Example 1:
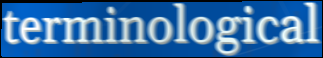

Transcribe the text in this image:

terminological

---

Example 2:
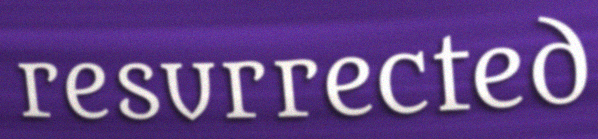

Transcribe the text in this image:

resurrected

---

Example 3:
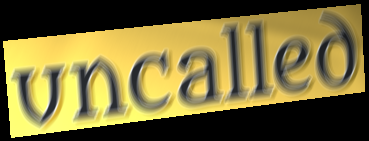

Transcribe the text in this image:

uncalled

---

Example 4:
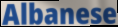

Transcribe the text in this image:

Albanese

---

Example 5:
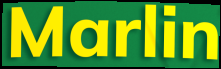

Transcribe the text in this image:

Marlin